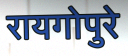
रायगोपुरे